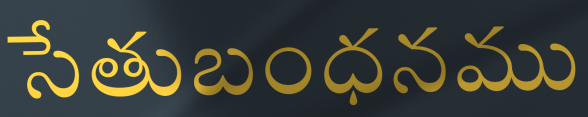
సేతుబంధనము